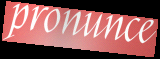
pronunce